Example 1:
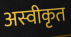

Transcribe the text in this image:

अस्वीकृत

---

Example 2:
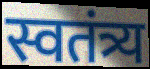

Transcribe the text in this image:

स्वतंत्र्य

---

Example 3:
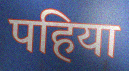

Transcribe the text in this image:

पहिया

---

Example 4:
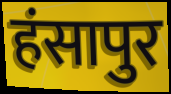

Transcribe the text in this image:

हंसापुर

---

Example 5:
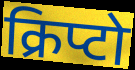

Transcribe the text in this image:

क्रिप्टो